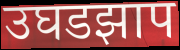
उघडझाप